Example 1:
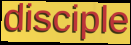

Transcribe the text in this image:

disciple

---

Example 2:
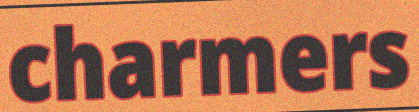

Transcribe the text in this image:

charmers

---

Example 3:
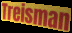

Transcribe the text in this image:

Treisman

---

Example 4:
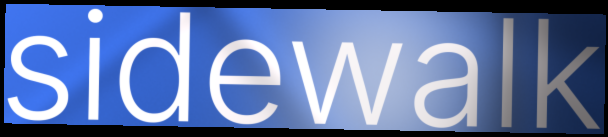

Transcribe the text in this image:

sidewalk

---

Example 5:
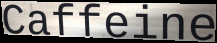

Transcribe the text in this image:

Caffeine